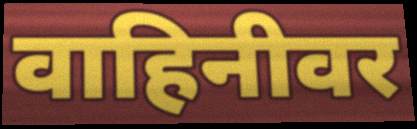
वाहिनीवर